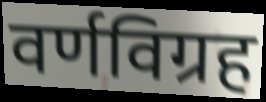
वर्णविग्रह